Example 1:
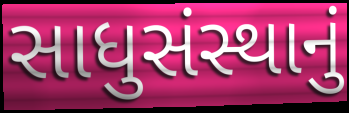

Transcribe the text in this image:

સાધુસંસ્થાનું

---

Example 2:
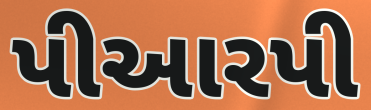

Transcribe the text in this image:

પીઆરપી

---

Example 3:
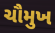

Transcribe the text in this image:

ચૌમુખ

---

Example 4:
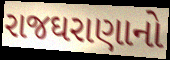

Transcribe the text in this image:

રાજઘરાણાનો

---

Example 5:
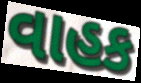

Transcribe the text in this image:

વાહક